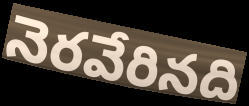
నెరవేరినది